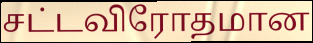
சட்டவிரோதமான